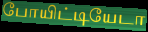
போயிட்டியேடா